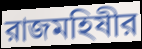
রাজমহিষীর